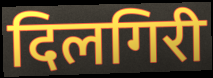
दिलगिरी